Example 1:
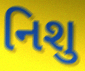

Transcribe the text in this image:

નિશુ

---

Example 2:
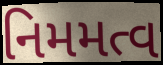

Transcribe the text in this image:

નિમમત્વ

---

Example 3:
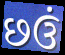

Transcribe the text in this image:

છઉં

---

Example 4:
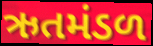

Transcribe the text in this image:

ઋતમંડળ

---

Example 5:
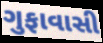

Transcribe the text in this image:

ગુફાવાસી